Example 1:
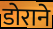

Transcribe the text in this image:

डोराने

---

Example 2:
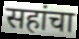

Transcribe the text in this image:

सहांचा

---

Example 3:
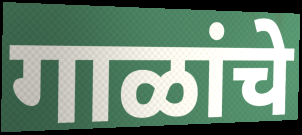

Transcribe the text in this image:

गाळांचे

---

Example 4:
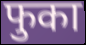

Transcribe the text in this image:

फुका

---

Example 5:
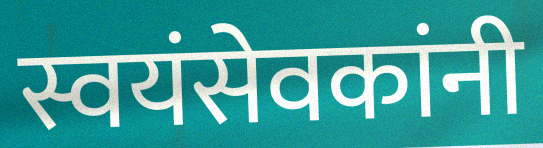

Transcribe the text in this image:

स्वयंसेवकांनी